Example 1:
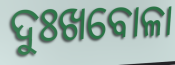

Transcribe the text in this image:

ଦୁଃଖବୋଳା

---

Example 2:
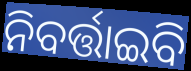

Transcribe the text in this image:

ନିବର୍ତ୍ତାଇବି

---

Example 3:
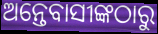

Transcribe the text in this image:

ଅନ୍ତେବାସୀଙ୍କଠାରୁ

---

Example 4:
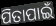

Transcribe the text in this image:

ପିତାପାଇଁ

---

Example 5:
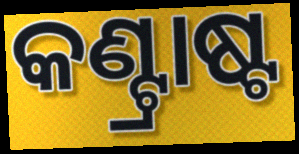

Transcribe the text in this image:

କଣ୍ଟ୍ରାଷ୍ଟ